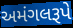
અમંગલરૂપે